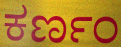
ಕರ್ಣಂ